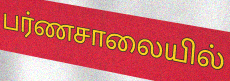
பர்ணசாலையில்